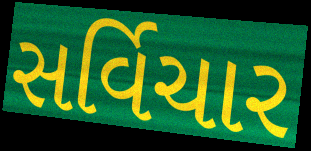
સર્વિચાર